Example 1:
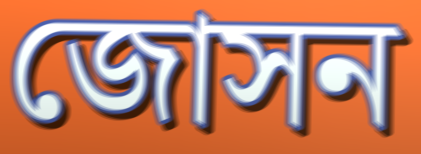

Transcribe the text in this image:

জোসন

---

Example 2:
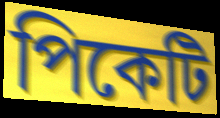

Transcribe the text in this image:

পিকেটি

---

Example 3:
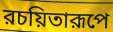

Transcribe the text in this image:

রচয়িতারূপে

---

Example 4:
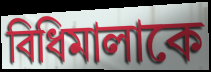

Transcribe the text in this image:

বিধিমালাকে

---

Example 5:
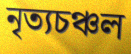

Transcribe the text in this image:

নৃত্যচঞ্চল